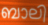
ബാലി